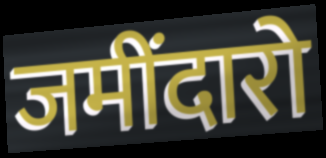
जमींदारो